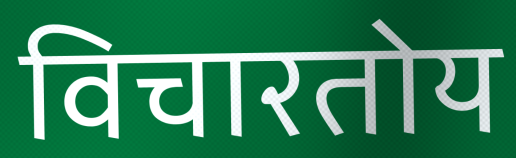
विचारतोय